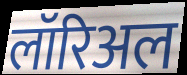
लॉरिअल